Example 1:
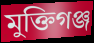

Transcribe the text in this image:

মুক্তিগঞ্জ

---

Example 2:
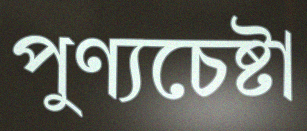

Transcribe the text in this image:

পুণ্যচেষ্টা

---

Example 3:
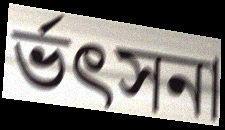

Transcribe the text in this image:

র্ভৎসনা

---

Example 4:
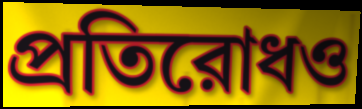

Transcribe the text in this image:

প্রতিরোধও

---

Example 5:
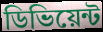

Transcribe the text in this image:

ডিভিয়েন্ট